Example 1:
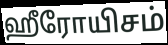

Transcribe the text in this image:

ஹீரோயிசம்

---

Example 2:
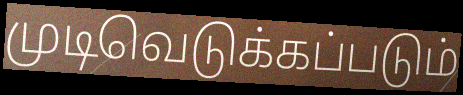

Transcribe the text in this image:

முடிவெடுக்கப்படும்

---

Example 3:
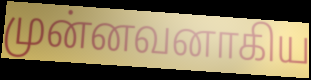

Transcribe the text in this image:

முன்னவனாகிய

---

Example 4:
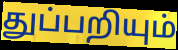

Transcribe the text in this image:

துப்பறியும்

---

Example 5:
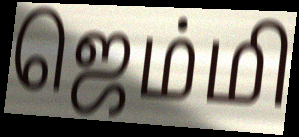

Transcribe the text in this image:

ஜெம்மி